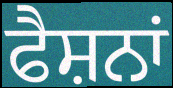
ਫੈਸ਼ਨਾਂ